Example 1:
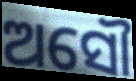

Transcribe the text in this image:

ଅସୌ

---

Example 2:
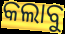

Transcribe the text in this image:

କଲାବୁ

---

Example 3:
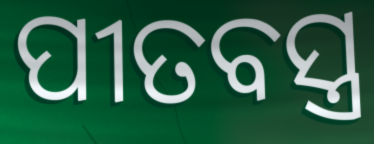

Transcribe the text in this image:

ପୀତବସ୍ତ୍ର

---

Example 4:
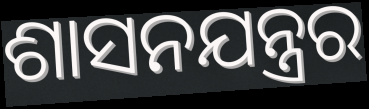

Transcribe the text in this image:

ଶାସନଯନ୍ତ୍ରର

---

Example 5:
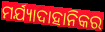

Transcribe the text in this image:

ମର୍ଯ୍ୟାଦାହାନିକର